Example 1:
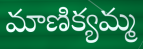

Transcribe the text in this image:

మాణిక్యమ్మ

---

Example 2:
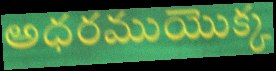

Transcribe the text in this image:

అధరముయొక్క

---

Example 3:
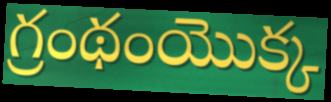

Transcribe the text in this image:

గ్రంథంయొక్క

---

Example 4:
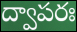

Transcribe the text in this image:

ద్వాపరః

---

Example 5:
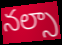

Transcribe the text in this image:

నల్సా